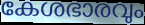
കേശഭാരവും